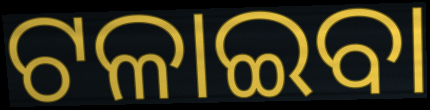
ଟଳାଇବା